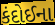
કંદોઈના